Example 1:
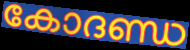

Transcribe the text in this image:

കോദണ്ഡ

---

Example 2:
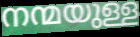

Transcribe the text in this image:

നന്മയുള്ള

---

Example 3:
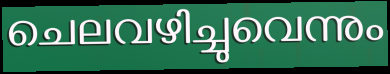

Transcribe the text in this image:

ചെലവഴിച്ചുവെന്നും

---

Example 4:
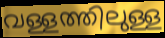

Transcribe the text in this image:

വള്ളത്തിലുള്ള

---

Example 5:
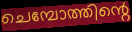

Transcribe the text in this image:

ചെമ്പോത്തിന്റെ